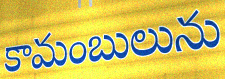
కామంబులును